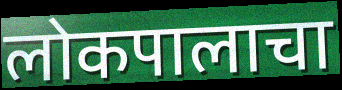
लोकपालाचा